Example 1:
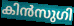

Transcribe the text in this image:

കിൻസുഗി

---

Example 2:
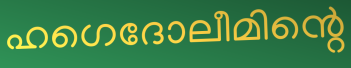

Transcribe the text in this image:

ഹഗെദോലീമിന്റെ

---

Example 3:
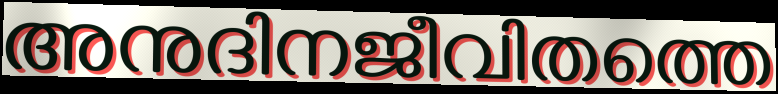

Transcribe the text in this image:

അനുദിനജീവിതത്തെ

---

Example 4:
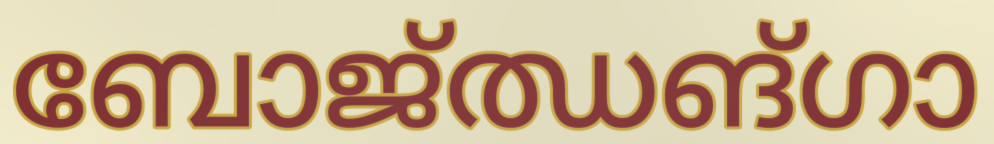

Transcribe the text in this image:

ബോജ്ഝങ്ഗാ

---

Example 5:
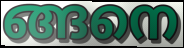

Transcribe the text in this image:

ങ്ങനെ